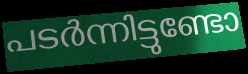
പടർന്നിട്ടുണ്ടോ